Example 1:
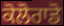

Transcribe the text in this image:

ਕੋਲੋਰਾਡੋ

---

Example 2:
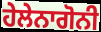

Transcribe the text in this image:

ਹੇਲੇਨਾਗੋਨੀ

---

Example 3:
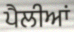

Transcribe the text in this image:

ਪੈਲੀਆਂ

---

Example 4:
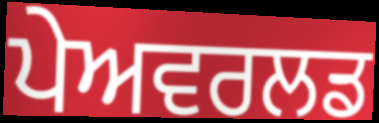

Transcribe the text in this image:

ਪੇਅਵਰਲਡ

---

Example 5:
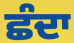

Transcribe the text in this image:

ਛੰਦਾ